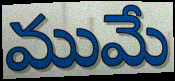
ముమే